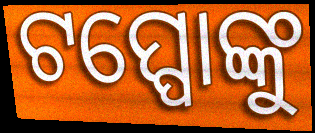
ଟପ୍ପୋଙ୍କୁ